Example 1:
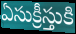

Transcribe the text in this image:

ఏసుక్రీస్తుకి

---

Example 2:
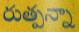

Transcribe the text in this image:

రుత్పన్నా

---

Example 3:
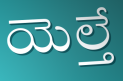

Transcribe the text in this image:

యెల్తే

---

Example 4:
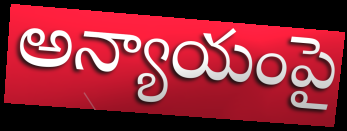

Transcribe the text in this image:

అన్యాయంపై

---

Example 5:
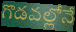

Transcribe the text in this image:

గొడవల్లోనే